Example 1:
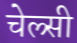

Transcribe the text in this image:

चेल्सी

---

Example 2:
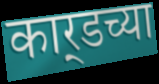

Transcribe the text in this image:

कार्डच्या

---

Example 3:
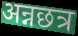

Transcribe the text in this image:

अन्नछत्र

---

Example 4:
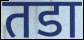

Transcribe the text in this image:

तडा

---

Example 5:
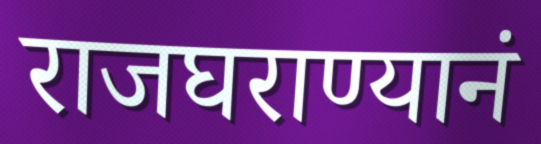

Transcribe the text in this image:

राजघराण्यानं